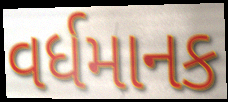
વર્ધમાનક